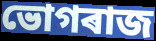
ভোগৰাজ